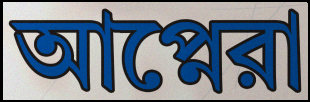
আপ্নেরা